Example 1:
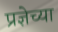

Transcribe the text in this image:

प्रज्ञेच्या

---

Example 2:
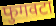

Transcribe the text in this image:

फुगवटा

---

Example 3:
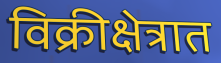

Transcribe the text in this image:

विक्रीक्षेत्रात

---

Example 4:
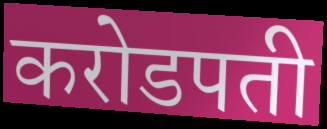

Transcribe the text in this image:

करोडपती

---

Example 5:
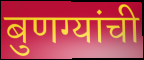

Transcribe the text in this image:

बुणग्यांची